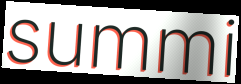
summi